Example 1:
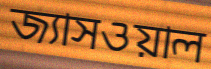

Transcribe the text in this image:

জ্যাসওয়াল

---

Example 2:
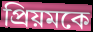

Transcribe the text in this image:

প্রিয়মকে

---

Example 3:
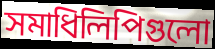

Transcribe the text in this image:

সমাধিলিপিগুলো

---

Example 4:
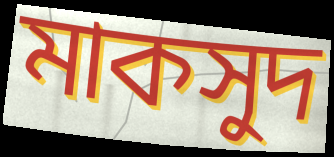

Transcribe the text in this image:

মাকসুদ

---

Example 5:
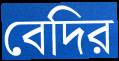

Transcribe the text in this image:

বেদির